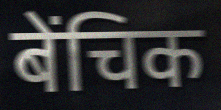
बेंचिक